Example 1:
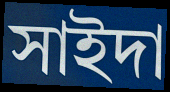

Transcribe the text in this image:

সাইদা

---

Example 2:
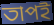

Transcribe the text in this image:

তাপই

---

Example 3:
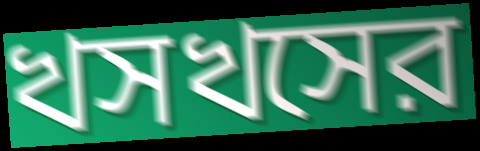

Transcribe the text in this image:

খসখসের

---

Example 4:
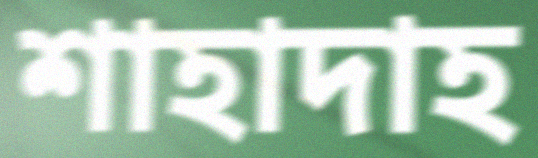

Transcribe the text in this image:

শাহাদাহ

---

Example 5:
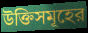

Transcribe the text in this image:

উক্তিসমূহের